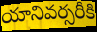
యానివర్సరీకి